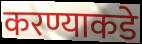
करण्याकडे